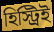
হিস্ট্রিই